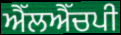
ਐੱਲਐੱਚਪੀ